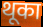
थूका